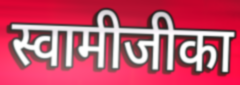
स्वामीजीका